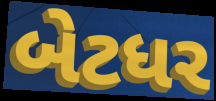
બેટધર